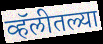
व्हॅलीतल्या